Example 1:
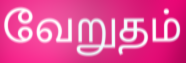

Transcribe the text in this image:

வேறுதம்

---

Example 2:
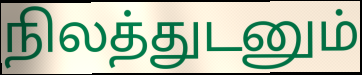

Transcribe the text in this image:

நிலத்துடனும்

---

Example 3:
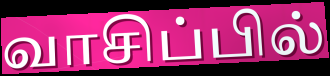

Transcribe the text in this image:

வாசிப்பில்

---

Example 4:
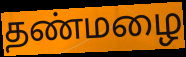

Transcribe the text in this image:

தண்மழை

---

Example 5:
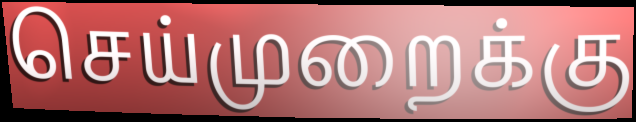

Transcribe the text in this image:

செய்முறைக்கு